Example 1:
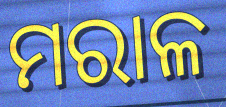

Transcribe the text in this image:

ମରାଳ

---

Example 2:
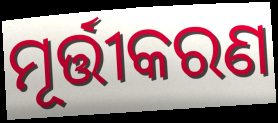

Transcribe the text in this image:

ମୂର୍ତ୍ତୀକରଣ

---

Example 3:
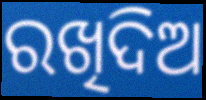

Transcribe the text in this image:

ରଖିଦିଅ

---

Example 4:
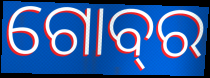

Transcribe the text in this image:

ଗୋବ୍‌ର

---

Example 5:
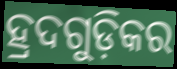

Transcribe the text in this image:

ହ୍ରଦଗୁଡ଼ିକର